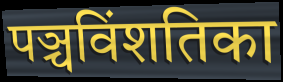
पञ्चविंशतिका